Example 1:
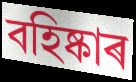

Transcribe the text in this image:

বহিষ্কাৰ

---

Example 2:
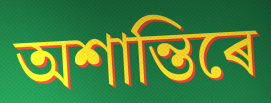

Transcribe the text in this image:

অশান্তিৰে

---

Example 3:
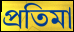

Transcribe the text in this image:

প্ৰতিমা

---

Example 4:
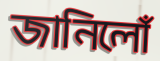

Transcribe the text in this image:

জানিলোঁ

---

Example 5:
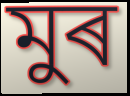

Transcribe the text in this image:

মুৰ